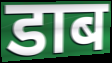
डाब